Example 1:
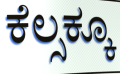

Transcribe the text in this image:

ಕೆಲ್ಸಕ್ಕೂ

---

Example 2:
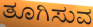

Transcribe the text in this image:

ತೂಗಿಸುವ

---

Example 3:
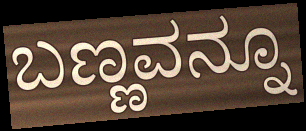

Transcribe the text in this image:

ಬಣ್ಣವನ್ನೂ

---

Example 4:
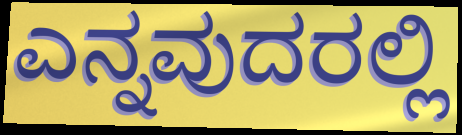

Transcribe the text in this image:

ಎನ್ನವುದರಲ್ಲಿ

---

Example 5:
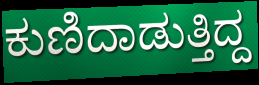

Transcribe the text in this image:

ಕುಣಿದಾಡುತ್ತಿದ್ದ